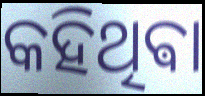
କହିଥିଵା